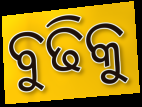
ବୁଢିକୁ